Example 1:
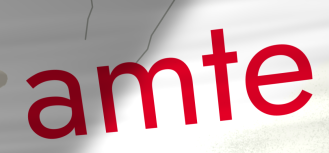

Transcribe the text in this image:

amte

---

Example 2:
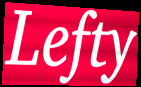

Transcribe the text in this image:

Lefty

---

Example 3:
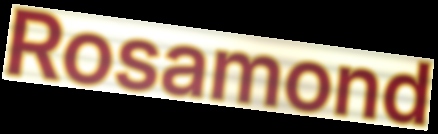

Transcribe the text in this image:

Rosamond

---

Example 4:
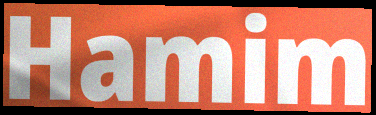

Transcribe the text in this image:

Hamim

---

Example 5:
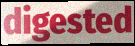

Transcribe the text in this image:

digested